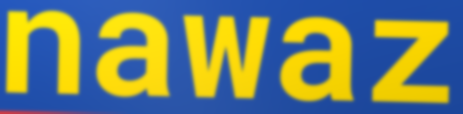
nawaz